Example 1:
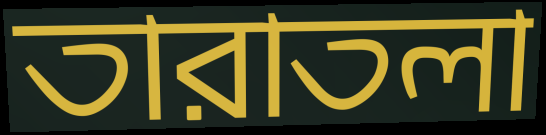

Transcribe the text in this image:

তারাতলা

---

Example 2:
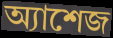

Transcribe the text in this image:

অ্যাশেজ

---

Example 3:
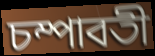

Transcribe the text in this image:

চম্পাবতী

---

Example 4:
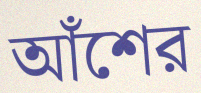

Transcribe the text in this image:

আঁশের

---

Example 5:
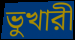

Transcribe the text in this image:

ভুখারী